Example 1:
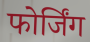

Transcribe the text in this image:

फोर्जिंग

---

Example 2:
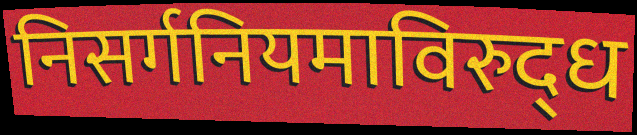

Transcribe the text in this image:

निसर्गनियमाविरुद्ध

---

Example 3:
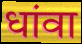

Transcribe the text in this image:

धांवा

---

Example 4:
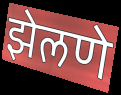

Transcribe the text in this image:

झेलणे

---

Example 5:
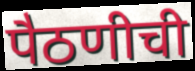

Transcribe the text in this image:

पैठणीची